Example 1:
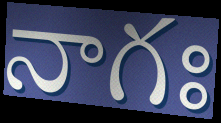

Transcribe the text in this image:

నాగః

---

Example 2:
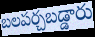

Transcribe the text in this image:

బలపర్చబడ్డారు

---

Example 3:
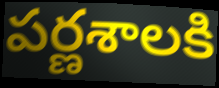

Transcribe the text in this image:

పర్ణశాలకి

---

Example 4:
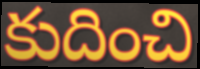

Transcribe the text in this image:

కుదించి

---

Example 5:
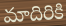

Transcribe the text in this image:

మాదిరికి